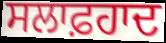
ਸਲਾਫ਼ਹਾਦ